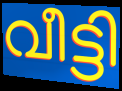
വീട്ടി